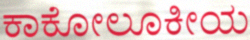
ಕಾಕೋಲೂಕೀಯ